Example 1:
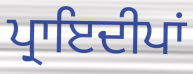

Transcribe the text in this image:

ਪ੍ਰਾਇਦੀਪਾਂ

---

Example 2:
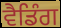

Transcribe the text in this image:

ਵੈਡਿੰਗ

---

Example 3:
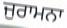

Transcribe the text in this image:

ਜੁਰਾਮਨਾ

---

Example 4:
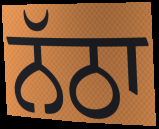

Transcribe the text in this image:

ਨੱਠਾ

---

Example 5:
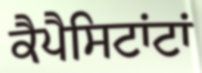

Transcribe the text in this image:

ਕੈਪੈਸਿਟਾਂਟਾਂ